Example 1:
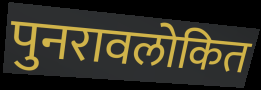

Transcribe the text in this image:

पुनरावलोकित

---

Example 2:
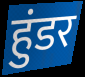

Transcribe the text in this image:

हुंडर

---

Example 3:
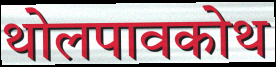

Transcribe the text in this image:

थोलपावकोथ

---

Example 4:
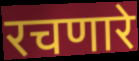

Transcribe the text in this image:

रचणारे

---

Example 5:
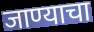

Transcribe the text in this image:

जाण्‍याचा